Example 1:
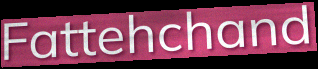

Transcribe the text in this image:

Fattehchand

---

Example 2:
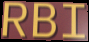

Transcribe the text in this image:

RBI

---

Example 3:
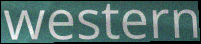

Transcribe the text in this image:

western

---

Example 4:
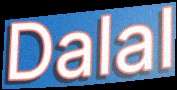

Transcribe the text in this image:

Dalal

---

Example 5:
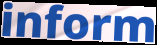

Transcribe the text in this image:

inform